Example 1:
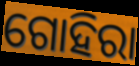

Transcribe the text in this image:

ଗୋହିରା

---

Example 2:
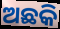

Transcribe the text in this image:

ଅଛକି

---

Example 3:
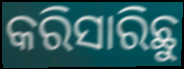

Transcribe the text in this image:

କରିସାରିଛୁ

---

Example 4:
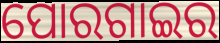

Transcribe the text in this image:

ପୋରଗାଇର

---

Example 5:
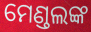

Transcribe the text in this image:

ମେଣ୍ଡଲଙ୍କ